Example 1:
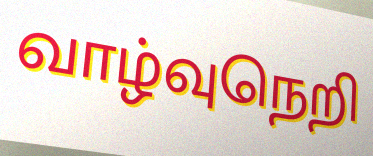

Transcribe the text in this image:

வாழ்வுநெறி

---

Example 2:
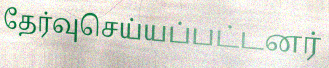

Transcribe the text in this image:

தேர்வுசெய்யப்பட்டனர்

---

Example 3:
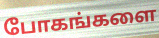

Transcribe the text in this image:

போகங்களை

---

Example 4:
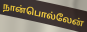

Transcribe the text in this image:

நான்பொல்லேன்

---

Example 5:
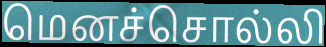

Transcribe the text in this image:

மெனச்சொல்லி